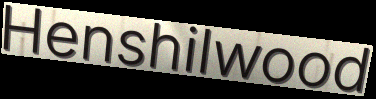
Henshilwood